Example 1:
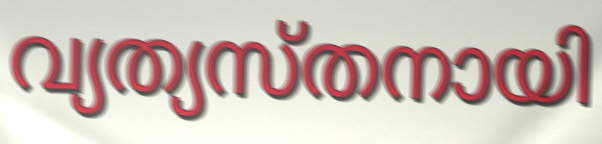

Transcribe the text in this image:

വ്യത്യസ്തനായി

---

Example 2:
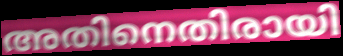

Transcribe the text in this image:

അതിനെതിരായി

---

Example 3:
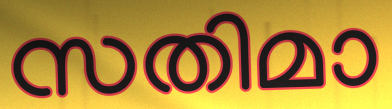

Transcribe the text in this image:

സതിമാ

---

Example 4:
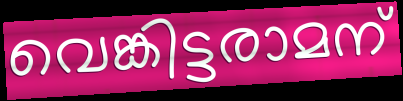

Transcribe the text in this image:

വെങ്കിട്ടരാമന്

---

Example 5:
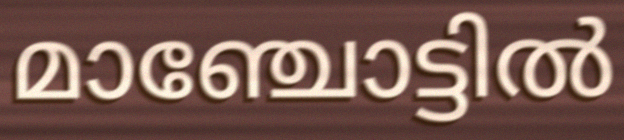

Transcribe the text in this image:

മാഞ്ചോട്ടിൽ